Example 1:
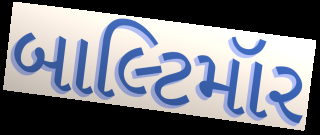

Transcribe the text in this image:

બાલ્ટિમૉર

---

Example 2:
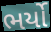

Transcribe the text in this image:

ભર્યો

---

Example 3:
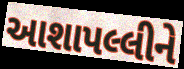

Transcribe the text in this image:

આશાપલ્લીને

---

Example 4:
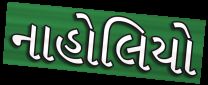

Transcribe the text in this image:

નાહોલિયો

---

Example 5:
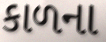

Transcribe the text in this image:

કાળના